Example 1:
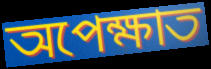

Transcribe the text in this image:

অপেক্ষাত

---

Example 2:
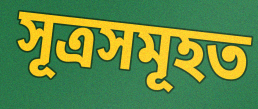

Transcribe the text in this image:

সূত্ৰসমূহত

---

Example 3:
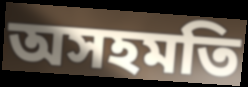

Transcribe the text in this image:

অসহমতি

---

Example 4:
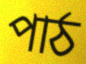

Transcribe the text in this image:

পাঠ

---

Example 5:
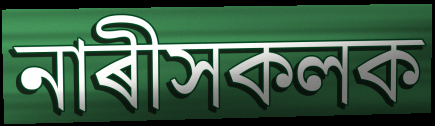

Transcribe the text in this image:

নাৰীসকলক